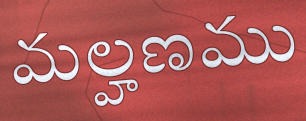
మల్హణము